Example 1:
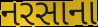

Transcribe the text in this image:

નરસાના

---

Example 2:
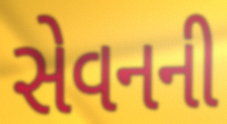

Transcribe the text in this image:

સેવનની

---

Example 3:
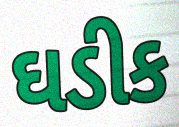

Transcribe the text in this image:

ઘડીક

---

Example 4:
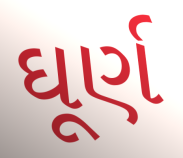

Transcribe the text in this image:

ઘૂર્ણ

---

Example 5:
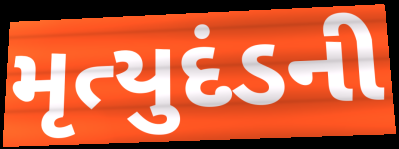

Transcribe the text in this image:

મૃત્યુદંડની